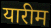
यारीम